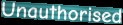
Unauthorised